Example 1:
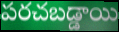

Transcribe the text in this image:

పరచబడ్డాయి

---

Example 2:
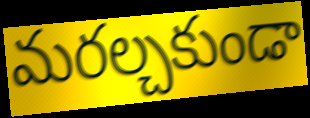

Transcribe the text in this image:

మరల్చకుండా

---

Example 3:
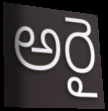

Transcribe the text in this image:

అరై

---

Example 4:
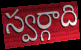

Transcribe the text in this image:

స్వర్గాది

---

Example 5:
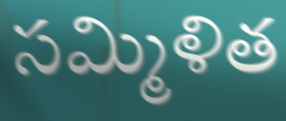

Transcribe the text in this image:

సమ్మిళిత